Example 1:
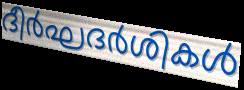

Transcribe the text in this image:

ദീർഘദർശികൾ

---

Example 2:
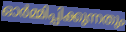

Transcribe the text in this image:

ഓർമ്മിപ്പിക്കുന്നതും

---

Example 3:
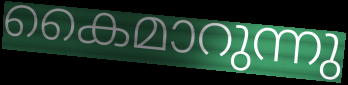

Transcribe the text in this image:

കൈമാറുന്നു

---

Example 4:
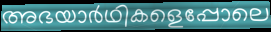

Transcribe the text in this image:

അഭയാർഥികളെപ്പോലെ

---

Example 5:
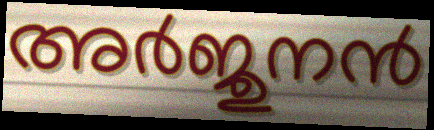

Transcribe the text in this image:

അർജുനൻ